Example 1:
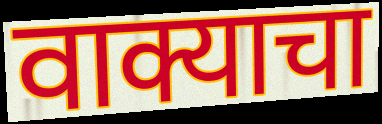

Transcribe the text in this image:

वाक्याचा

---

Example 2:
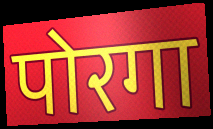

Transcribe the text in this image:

पोरगा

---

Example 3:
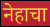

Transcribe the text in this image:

नेहाचा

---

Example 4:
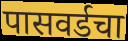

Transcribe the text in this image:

पासवर्डचा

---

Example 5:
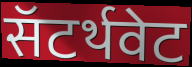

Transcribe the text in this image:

सॅटर्थवेट